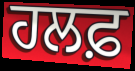
ਹਲਫ਼